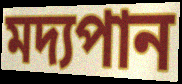
মদ্যপান